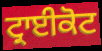
ਟ੍ਰਾਈਕੋਟ